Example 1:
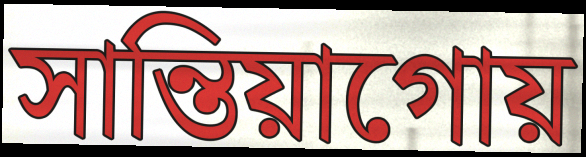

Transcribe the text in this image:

সান্তিয়াগোয়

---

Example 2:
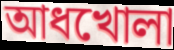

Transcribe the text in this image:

আধখোলা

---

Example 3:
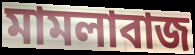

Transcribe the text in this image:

মামলাবাজ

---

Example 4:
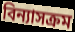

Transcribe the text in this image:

বিন্যাসক্রম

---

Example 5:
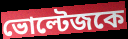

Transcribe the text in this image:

ভোল্টেজকে